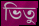
ভিতু